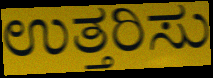
ಉತ್ತರಿಸು